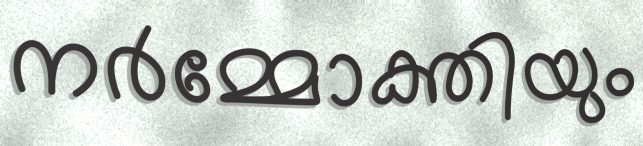
നർമ്മോക്തിയും